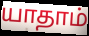
யாதாம்